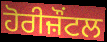
ਹੋਰੀਜ਼ੌਂਟਲ